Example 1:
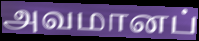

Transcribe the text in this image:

அவமானப்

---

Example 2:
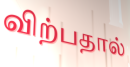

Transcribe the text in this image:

விற்பதால்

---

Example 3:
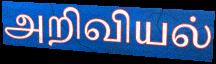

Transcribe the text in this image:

அறிவியல்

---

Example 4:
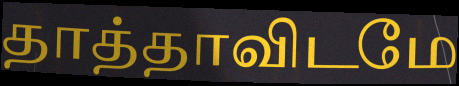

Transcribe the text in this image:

தாத்தாவிடமே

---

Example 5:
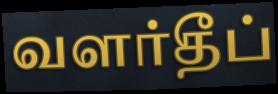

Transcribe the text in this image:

வளர்தீப்